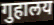
गुहालय